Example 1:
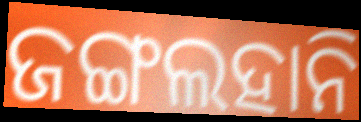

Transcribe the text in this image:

ଜଙ୍ଗଲହାନି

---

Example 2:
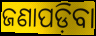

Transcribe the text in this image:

ଜଣାପଡ଼ିବା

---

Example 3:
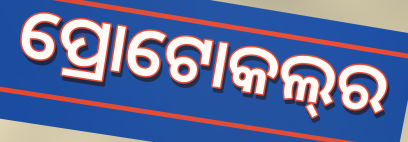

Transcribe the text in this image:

ପ୍ରୋଟୋକଲ୍‌ର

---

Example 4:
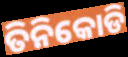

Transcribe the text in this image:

ତିନିକୋଡି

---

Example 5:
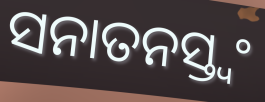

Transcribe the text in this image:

ସନାତନସ୍ତ୍ୱଂ